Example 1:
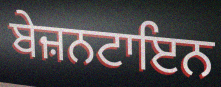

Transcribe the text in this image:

ਬੇਜ਼ਨਟਾਇਨ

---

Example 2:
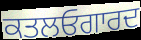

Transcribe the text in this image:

ਕਤਲਓਗਾਰਦ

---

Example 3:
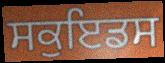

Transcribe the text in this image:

ਸਕੁਇਡਸ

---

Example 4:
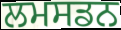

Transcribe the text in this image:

ਲਮਸਡਨ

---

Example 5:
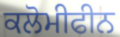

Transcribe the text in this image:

ਕਲੋਮੀਫੀਨ